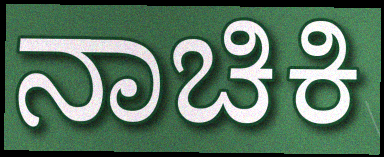
ನಾಚಿಕಿ